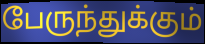
பேருந்துக்கும்